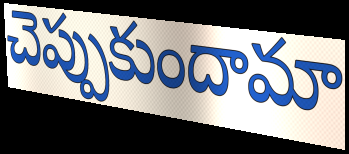
చెప్పుకుందామా